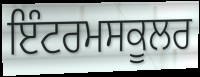
ਇੰਟਰਮਸਕੂਲਰ